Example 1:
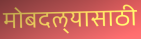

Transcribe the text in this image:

मोबदल्यासाठी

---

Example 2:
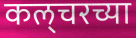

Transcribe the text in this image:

कल्चरच्या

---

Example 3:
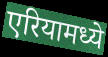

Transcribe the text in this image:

एरियामध्ये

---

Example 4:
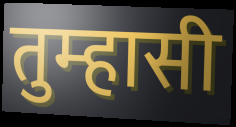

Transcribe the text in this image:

तुम्हासी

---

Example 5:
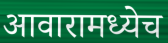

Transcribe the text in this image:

आवारामध्येच